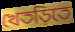
খেতড়িতে